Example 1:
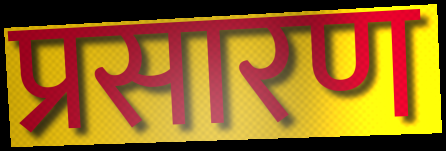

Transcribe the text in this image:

प्रसारण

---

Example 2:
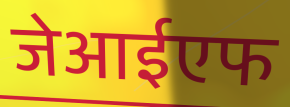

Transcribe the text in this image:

जेआईएफ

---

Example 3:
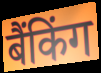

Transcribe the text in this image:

बैंकिंग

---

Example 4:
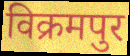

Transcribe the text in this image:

विक्रमपुर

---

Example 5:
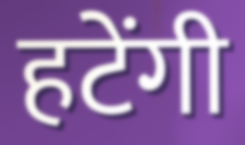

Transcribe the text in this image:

हटेंगी